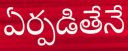
ఏర్పడితేనే